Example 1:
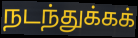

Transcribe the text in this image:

நடந்துக்கக்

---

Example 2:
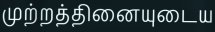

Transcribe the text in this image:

முற்றத்தினையுடைய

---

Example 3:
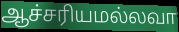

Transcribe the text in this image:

ஆச்சரியமல்லவா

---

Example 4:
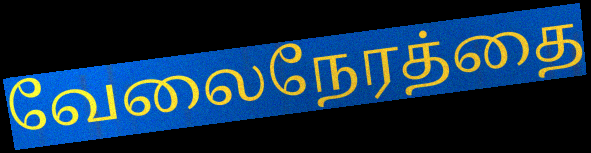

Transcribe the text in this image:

வேலைநேரத்தை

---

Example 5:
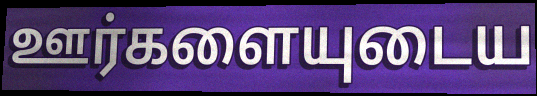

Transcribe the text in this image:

ஊர்களையுடைய